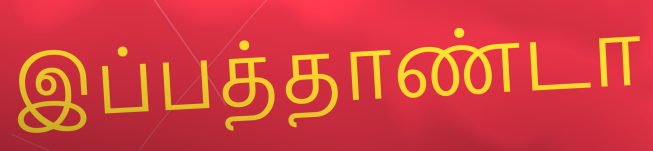
இப்பத்தாண்டா